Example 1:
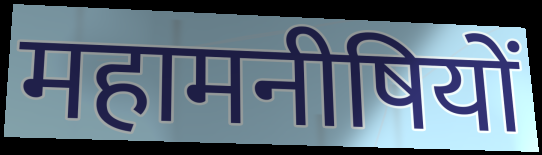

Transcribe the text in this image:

महामनीषियों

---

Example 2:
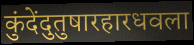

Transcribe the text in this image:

कुंदेंदुतुषारहारधवला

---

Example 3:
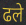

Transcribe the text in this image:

ढले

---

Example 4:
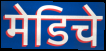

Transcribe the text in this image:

मेडिचे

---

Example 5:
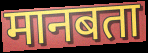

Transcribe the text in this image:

मानबता